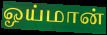
ஓய்மான்